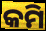
କମି